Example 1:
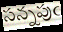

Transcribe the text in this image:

సన్నపుఁ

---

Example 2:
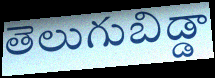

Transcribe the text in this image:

తెలుగుబిడ్డా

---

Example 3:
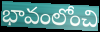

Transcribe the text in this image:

భావంలోంచి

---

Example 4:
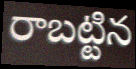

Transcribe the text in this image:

రాబట్టిన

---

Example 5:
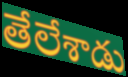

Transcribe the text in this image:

తేలేశాడు